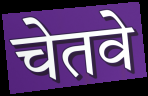
चेतवे